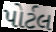
પોર્ટલ